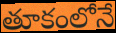
తూకంలోనే